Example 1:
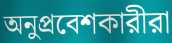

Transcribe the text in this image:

অনুপ্রবেশকারীরা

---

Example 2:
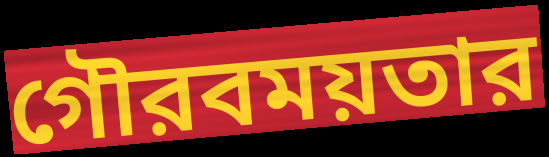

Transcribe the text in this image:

গৌরবময়তার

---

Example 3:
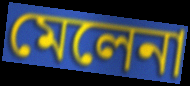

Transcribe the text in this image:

মেলেনা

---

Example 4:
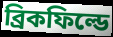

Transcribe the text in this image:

ব্রিকফিল্ডে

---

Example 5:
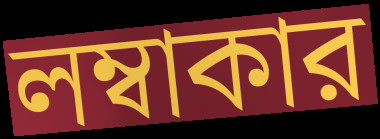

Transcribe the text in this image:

লম্বাকার